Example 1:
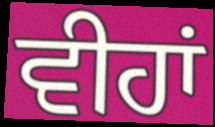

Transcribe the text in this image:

ਵੀਹਾਂ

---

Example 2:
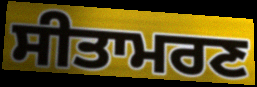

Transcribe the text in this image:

ਸੀਤਾਮਰਣ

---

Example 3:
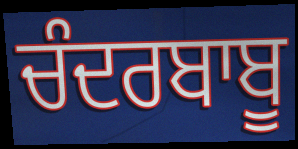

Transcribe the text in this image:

ਚੰਦਰਬਾਬੂ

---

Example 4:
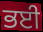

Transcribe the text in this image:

ਭਈ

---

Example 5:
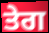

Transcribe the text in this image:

ਤੇਗ